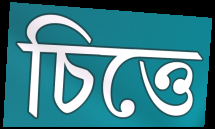
চিত্তে